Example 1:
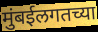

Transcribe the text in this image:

मुंबईलगतच्या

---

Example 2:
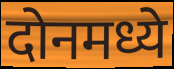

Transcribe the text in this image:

दोनमध्ये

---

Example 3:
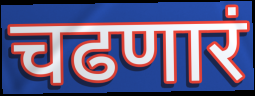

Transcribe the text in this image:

चढणारं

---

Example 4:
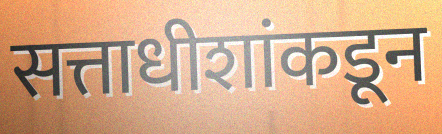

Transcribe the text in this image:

सत्ताधीशांकडून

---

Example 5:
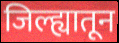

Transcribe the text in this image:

जिल्ह्यातून